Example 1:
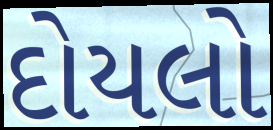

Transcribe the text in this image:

દોયલો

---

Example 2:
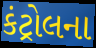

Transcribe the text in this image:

કંટ્રોલના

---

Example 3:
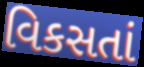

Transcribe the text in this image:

વિકસતાં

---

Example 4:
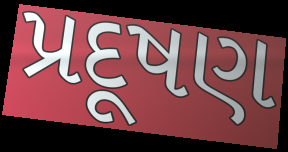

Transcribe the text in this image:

પ્રદૂષણ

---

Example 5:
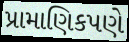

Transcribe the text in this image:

પ્રામાણિકપણે